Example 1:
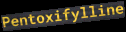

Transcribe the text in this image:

Pentoxifylline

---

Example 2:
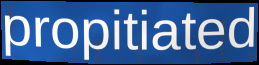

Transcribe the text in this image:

propitiated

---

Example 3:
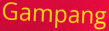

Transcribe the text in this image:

Gampang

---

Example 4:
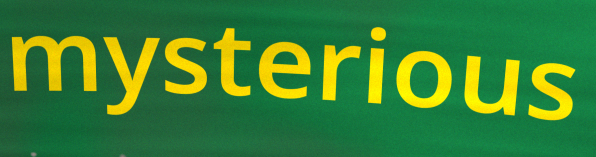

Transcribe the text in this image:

mysterious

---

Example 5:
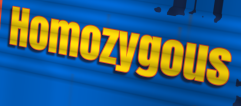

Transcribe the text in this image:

Homozygous